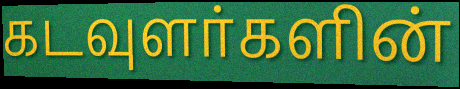
கடவுளர்களின்